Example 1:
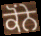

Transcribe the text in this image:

ਕੋਂਨੇ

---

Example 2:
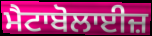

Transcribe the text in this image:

ਮੈਟਾਬੋਲਾਈਜ਼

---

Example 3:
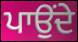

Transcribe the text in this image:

ਪਾਉਂਦੇ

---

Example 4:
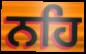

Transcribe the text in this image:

ਨਹਿ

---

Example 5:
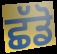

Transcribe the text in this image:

ਛੱਡੋ